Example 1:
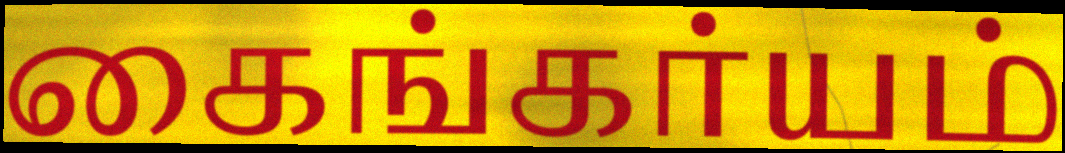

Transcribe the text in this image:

கைங்கர்யம்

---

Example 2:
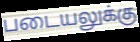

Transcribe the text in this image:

படையலுக்கு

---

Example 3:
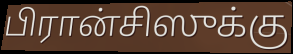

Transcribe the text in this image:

பிரான்சிஸுக்கு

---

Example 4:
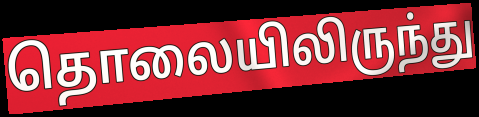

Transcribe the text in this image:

தொலையிலிருந்து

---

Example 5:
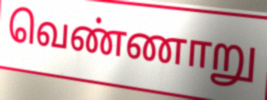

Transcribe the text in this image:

வெண்ணாறு